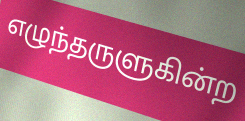
எழுந்தருளுகின்ற